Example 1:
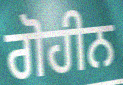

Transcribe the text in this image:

ਗੋਹੀਨ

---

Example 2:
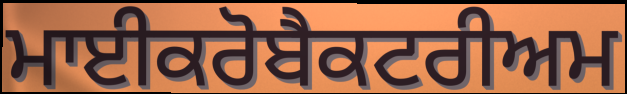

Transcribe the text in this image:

ਮਾਈਕਰੋਬੈਕਟਰੀਅਮ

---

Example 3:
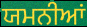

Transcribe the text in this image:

ਯਮਨੀਆਂ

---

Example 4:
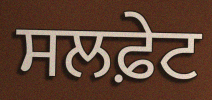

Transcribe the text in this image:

ਸਲਫ਼ੇਟ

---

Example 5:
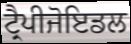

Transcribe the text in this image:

ਟ੍ਰੈਪੀਜੋਇਡਲ